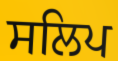
ਸਲਿਪ